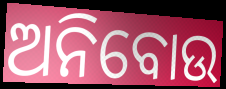
ଅନିବୋଉ